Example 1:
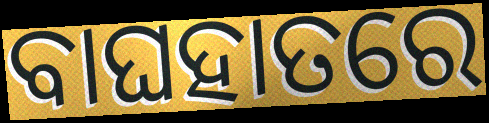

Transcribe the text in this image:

ବାଘହାତରେ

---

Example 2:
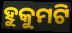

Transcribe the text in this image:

ହୁକୁମଟି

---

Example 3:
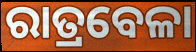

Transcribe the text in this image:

ରାତ୍ରବେଳା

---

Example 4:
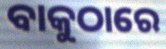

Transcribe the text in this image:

ବାକୁଠାରେ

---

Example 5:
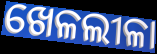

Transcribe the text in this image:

ଖେଳଲୀଳା